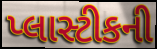
પ્લાસ્ટીકની